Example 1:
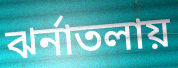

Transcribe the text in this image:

ঝর্নাতলায়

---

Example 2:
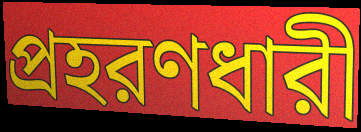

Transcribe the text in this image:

প্রহরণধারী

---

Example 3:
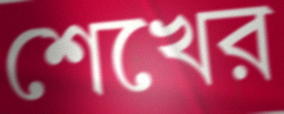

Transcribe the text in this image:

শেখের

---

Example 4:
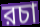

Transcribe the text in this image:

রচা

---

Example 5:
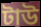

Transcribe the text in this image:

টাউ